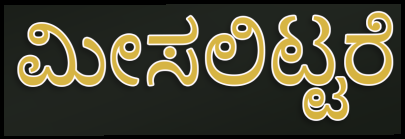
ಮೀಸಲಿಟ್ಟರೆ